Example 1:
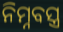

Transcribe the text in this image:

ନିମ୍ନବସ୍ତ୍ର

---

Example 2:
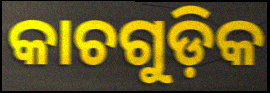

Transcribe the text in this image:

କାଚଗୁଡ଼ିକ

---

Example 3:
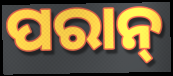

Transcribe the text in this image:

ପରାନ୍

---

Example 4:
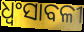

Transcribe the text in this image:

ଧ୍ୱଂସାବଳୀ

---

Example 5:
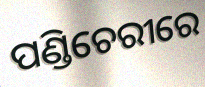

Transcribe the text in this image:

ପଣ୍ଡିଚେରୀରେ